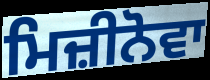
ਮਿਜ਼ੀਨੋਵਾ